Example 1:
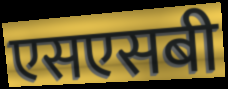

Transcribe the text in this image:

एसएसबी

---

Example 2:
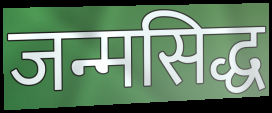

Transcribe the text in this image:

जन्मसिद्ध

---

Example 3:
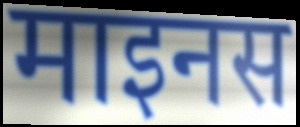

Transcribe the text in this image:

माइनस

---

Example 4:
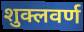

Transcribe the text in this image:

शुक्लवर्ण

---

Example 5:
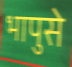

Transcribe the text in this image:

भापुसे